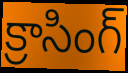
క్రాసింగ్